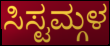
ಸಿಸ್ಟಮ್ಗಳ